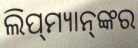
ଲିପ୍‌ମ୍ୟାନ୍‌ଙ୍କର